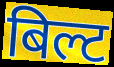
बिल्‍ट